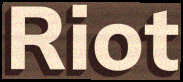
Riot